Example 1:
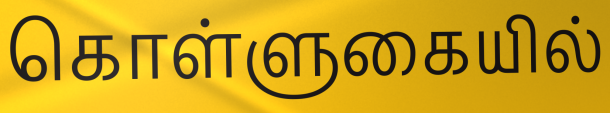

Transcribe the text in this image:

கொள்ளுகையில்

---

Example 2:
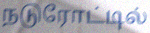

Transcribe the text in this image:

நடுரோட்டில்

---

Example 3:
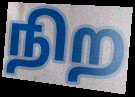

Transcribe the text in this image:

நிற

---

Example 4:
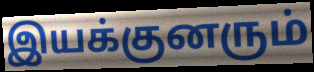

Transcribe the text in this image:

இயக்குனரும்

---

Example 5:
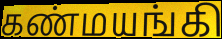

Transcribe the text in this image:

கண்மயங்கி